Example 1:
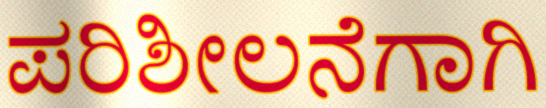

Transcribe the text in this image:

ಪರಿಶೀಲನೆಗಾಗಿ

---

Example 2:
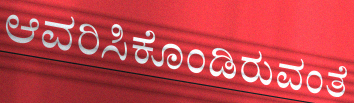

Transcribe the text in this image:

ಆವರಿಸಿಕೊಂಡಿರುವಂತೆ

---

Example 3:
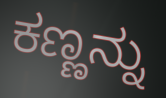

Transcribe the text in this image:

ಕಣ್ಣನ್ನು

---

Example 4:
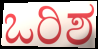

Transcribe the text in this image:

ಒರಿಶ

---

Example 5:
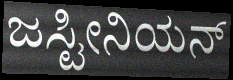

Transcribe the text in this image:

ಜಸ್ಟೀನಿಯನ್